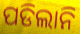
ପଡିଲାନି